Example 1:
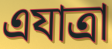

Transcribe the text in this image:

এযাত্রা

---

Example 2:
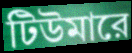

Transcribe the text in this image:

টিউমারে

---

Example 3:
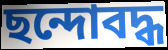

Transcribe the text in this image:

ছন্দোবদ্ধ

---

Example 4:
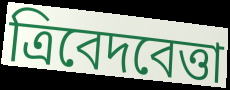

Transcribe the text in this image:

ত্রিবেদবেত্তা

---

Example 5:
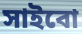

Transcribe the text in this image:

সাইবো